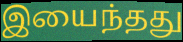
இயைந்தது